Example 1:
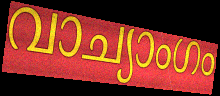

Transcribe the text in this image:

വാച്യാംഗം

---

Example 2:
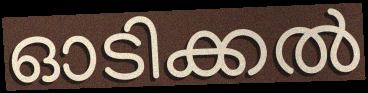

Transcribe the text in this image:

ഓടിക്കൽ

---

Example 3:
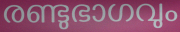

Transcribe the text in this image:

രണ്ടുഭാഗവും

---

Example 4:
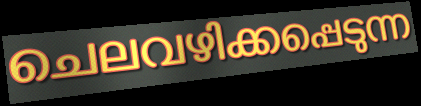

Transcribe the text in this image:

ചെലവഴിക്കപ്പെടുന്ന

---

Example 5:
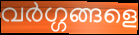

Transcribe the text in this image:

വർഗ്ഗങ്ങളെ